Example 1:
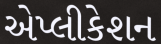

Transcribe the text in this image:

એપ્લીકેશન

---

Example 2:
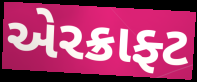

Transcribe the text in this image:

એરક્રાફ્ટ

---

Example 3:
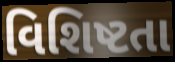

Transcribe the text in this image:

વિશિષ્ટતા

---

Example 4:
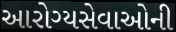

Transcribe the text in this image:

આરોગ્યસેવાઓની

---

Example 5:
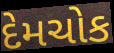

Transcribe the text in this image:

દેમચોક